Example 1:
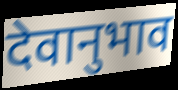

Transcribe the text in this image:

देवानुभाव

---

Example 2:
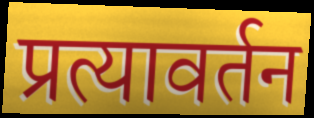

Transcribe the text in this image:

प्रत्यावर्तन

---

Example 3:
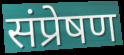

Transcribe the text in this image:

संप्रेषण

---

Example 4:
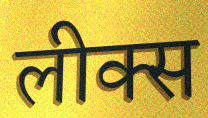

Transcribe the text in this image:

लीक्स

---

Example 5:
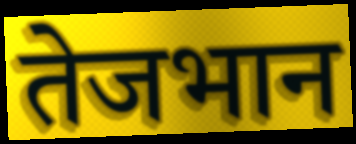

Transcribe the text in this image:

तेजभान